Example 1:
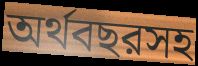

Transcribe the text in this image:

অর্থবছরসহ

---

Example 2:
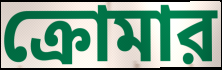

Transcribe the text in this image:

ক্রোমার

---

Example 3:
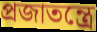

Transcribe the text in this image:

প্রজাতন্ত্রে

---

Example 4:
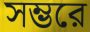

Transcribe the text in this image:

সম্ভরে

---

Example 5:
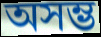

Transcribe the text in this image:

অসম্ভ